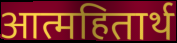
आत्महितार्थ